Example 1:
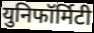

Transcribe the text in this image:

युनिफॉर्मिटी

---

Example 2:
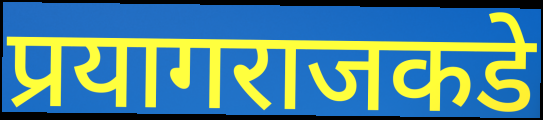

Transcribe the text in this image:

प्रयागराजकडे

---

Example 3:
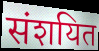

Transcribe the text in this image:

संशयित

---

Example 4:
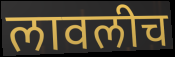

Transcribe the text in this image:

लावलीच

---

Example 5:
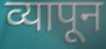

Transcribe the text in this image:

व्यापून